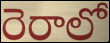
రెరాలో